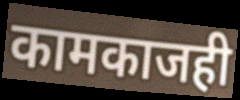
कामकाजही